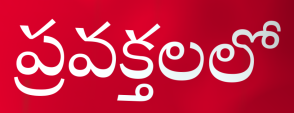
ప్రవక్తలలో